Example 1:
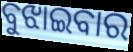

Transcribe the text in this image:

ବୁଝାଇବାର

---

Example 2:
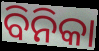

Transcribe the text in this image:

ବିନିକା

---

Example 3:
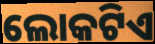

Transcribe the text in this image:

ଲୋକଟିଏ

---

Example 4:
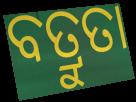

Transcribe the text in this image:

ବତ୍ରୁତା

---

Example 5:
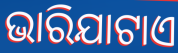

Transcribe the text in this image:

ଭାରିଯାଟାଏ